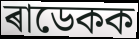
ৰাডেকক